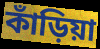
কাঁড়িয়া